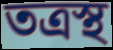
তত্রস্থ